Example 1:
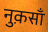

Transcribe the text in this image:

नुक़साँ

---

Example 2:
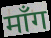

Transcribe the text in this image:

माँग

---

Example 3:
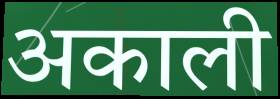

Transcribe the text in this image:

अकाली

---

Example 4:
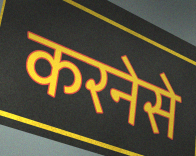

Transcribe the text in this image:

करनेसे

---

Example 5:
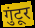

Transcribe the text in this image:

गुंटूर